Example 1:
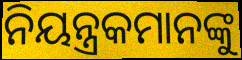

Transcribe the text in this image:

ନିୟନ୍ତ୍ରକମାନଙ୍କୁ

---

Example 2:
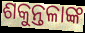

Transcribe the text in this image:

ଶକୁନ୍ତଳାଙ୍କ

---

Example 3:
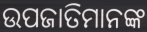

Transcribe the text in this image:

ଉପଜାତିମାନଙ୍କ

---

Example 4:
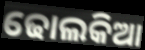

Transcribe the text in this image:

ଢୋଲକିଆ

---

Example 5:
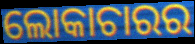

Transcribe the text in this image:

ଲୋକାଚାରର